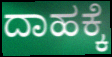
ದಾಹಕ್ಕೆ